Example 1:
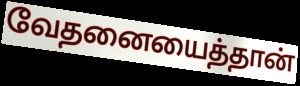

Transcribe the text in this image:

வேதனையைத்தான்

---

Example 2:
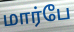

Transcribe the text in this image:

மார்பே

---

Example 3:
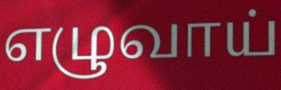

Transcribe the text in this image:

எழுவாய்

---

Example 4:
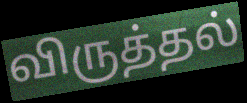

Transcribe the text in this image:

விருத்தல்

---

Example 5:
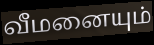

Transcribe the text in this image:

வீமனையும்